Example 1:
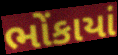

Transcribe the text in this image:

ભોંકાયાં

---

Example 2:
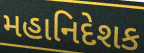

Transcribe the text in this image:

મહાનિદેશક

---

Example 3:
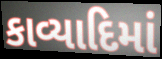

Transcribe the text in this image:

કાવ્યાદિમાં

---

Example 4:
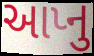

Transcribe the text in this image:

આપ્નુ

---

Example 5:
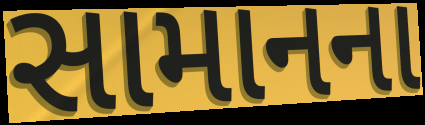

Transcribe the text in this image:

સામાનના